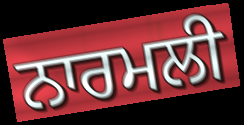
ਨਾਰਮਲੀ